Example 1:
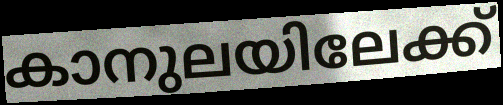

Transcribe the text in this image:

കാനുലയിലേക്ക്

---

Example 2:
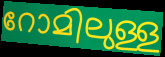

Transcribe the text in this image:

റോമിലുള്ള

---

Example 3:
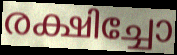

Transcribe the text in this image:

രക്ഷിച്ചോ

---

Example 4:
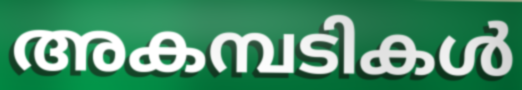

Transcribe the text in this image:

അകമ്പടികൾ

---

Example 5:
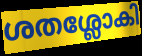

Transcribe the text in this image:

ശതശ്ലോകി